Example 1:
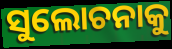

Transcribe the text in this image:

ସୁଲୋଚନାକୁ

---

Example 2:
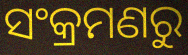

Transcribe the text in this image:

ସଂକ୍ରମଣରୁ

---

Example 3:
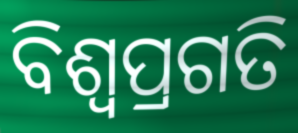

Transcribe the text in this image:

ବିଶ୍ବପ୍ରଗତି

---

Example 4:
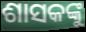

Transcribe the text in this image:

ଶାସକଙ୍କୁ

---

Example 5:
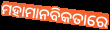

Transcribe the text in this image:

ମହାମାନବିକତାରେ